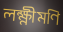
লক্ষ্ণীমণি